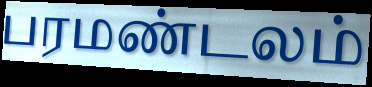
பரமண்டலம்